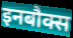
इनबौक्स